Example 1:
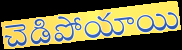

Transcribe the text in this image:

చెడిపోయాయి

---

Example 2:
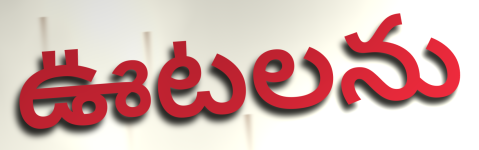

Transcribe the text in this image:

ఊటలను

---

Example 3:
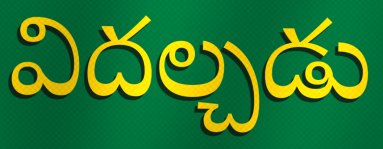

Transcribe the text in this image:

విదల్చడు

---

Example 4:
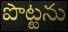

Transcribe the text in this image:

పొట్టను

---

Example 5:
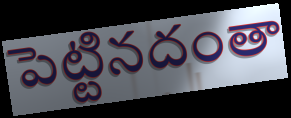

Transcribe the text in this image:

పెట్టినదంతా